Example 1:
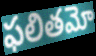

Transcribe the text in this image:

ఫలితమో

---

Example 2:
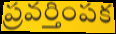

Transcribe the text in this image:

ప్రవర్తింపక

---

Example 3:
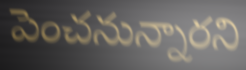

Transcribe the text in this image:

పెంచనున్నారని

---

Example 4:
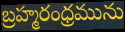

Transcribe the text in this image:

బ్రహ్మరంధ్రమును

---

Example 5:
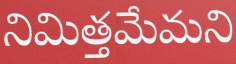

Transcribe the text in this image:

నిమిత్తమేమని